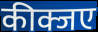
कीक्जए